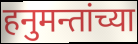
हनुमन्तांच्या